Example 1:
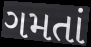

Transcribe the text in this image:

ગમતાં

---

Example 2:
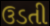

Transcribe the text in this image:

ઉડતી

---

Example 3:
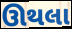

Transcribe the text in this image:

ઊથલા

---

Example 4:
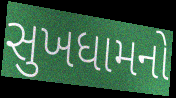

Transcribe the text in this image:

સુખધામનો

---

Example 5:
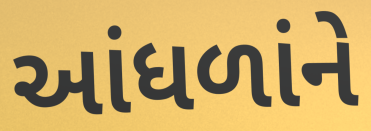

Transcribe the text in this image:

આંધળાંને